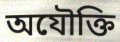
অযৌক্তি